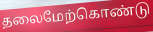
தலைமேற்கொண்டு